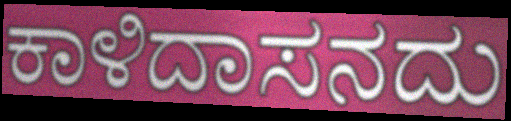
ಕಾಳಿದಾಸನದು